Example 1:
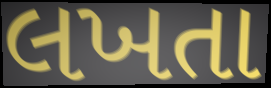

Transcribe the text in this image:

લખતા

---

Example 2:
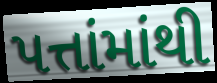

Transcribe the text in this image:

પત્તાંમાંથી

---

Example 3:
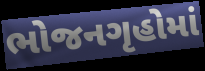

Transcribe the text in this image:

ભોજનગૃહોમાં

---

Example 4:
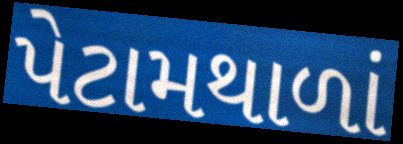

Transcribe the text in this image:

પેટામથાળાં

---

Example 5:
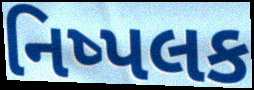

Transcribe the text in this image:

નિષ્પલક